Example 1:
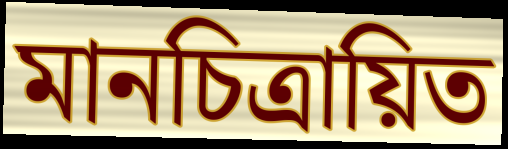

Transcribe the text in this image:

মানচিত্রায়িত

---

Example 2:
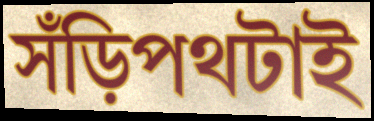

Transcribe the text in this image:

সঁড়িপথটাই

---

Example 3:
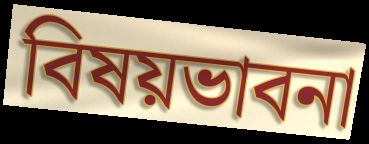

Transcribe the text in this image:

বিষয়ভাবনা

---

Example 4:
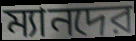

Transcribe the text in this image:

ম্যানদের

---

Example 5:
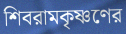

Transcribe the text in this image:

শিবরামকৃষ্ণণের